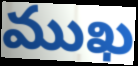
ముఖ